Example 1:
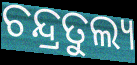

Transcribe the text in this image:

ଚନ୍ଦ୍ରତୁଲ୍ୟ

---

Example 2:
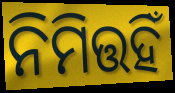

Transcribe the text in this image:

ନିମିତ୍ତହିଁ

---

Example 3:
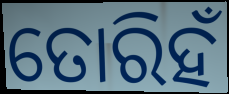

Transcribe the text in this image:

ତୋରିହଁ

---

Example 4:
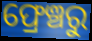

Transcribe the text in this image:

ଫ୍ରେଞ୍ଚରୁ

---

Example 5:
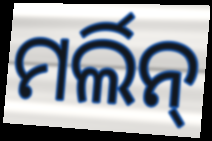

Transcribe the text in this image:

ମର୍ଲିନ୍